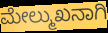
ಮೇಲ್ಮುಖನಾಗಿ